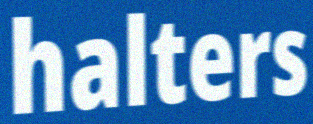
halters